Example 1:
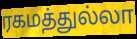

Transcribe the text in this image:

ரகமத்துல்லா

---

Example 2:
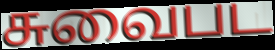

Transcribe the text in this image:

சுவைபட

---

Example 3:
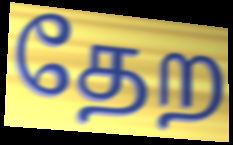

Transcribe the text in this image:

தேற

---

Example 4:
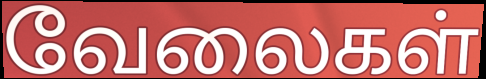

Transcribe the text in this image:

வேலைகள்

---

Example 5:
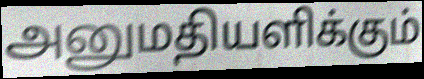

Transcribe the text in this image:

அனுமதியளிக்கும்